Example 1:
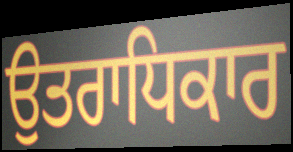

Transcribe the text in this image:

ਉਤਰਾਧਿਕਾਰ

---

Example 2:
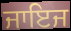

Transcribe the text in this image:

ਜਾਇਜ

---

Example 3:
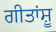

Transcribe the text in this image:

ਗੀਤਾਂਸ਼ੂ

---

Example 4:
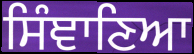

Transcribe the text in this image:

ਸਿੰਞਾਣਿਆ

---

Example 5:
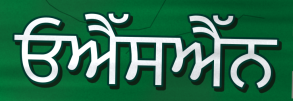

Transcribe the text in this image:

ਓਐੱਸਐੱਨ